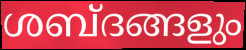
ശബ്ദങ്ങളും